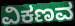
ವಿಕಣವ